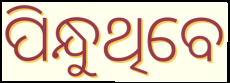
ପିନ୍ଧୁଥିବେ